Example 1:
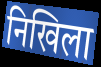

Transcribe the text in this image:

निखिला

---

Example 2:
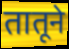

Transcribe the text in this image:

तातूने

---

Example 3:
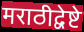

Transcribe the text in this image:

मराठीद्वेष्टे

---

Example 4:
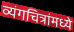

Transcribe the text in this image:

व्यंगचित्रांमध्ये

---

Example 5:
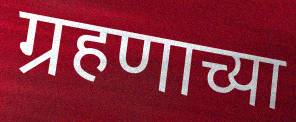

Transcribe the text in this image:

ग्रहणाच्या